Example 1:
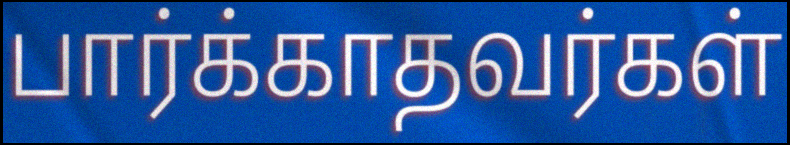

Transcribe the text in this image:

பார்க்காதவர்கள்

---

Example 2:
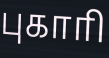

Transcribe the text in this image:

புகாரி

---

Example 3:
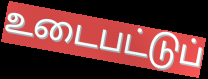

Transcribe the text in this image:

உடைபட்டுப்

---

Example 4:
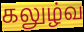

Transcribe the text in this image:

கலுழ்வ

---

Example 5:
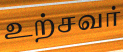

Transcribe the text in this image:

உற்சவர்